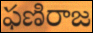
ఫణిరాజ